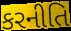
કરનીતિ